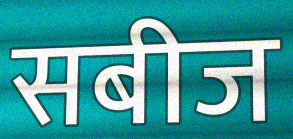
सबीज